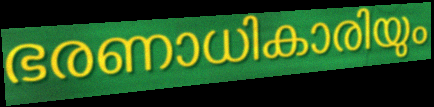
ഭരണാധികാരിയും